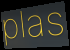
plas